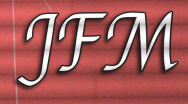
JFM